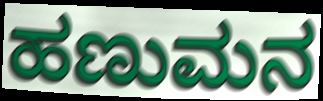
ಹಣುಮನ